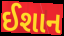
ઈશાન